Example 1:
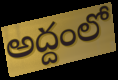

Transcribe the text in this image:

అద్దంలో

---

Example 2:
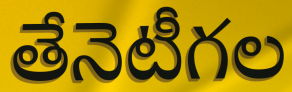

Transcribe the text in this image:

తేనెటీగల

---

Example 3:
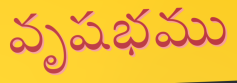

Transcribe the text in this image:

వృషభము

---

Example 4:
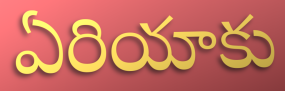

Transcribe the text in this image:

ఏరియాకు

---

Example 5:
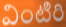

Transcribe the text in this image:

వింటిరి